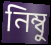
নিম্বু